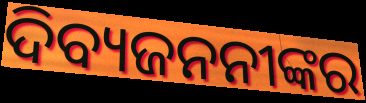
ଦିବ୍ୟଜନନୀଙ୍କର